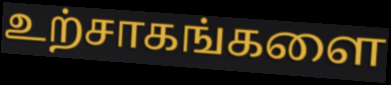
உற்சாகங்களை